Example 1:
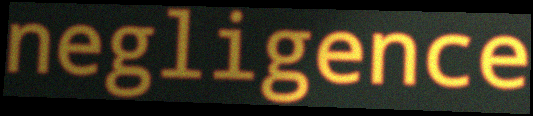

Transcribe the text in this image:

negligence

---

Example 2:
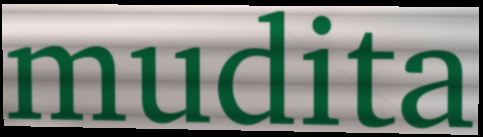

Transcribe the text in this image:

mudita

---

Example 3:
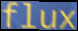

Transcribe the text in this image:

flux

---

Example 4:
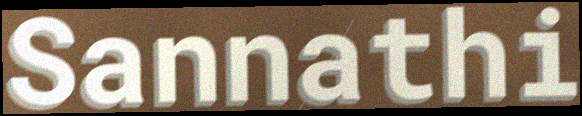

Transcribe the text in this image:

Sannathi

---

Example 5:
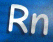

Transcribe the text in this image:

Rn